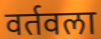
वर्तवला